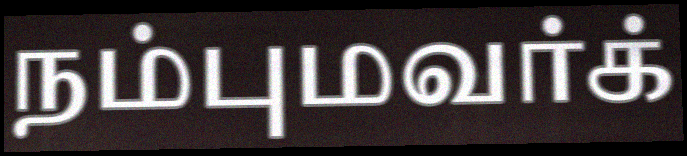
நம்புமவர்க்